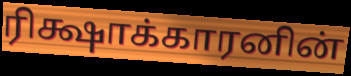
ரிக்ஷாக்காரனின்